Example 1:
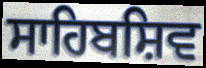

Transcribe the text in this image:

ਸਾਹਿਬਸ਼ਿਵ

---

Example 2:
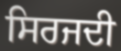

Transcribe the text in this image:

ਸਿਰਜਦੀ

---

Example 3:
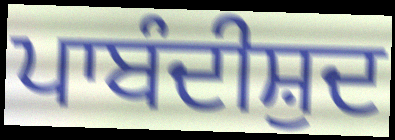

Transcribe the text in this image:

ਪਾਬੰਦੀਸ਼ੁਦ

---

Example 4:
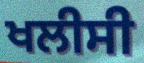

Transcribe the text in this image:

ਖਲੀਸੀ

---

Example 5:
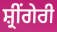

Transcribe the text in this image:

ਸ਼੍ਰੀਂਗੇਰੀ